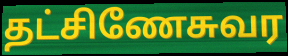
தட்சிணேசுவர